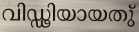
വിഡ്ഢിയായതു്